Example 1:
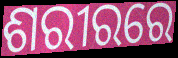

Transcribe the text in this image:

ଶରୀରରେ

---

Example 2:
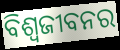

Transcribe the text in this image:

ବିଶ୍ଵଜୀବନର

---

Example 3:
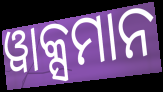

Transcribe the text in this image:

ୱାକ୍ସମାନ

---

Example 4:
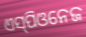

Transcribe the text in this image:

ଏସ୍‌ପିଓନେଜ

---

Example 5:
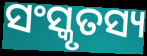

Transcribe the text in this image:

ସଂସ୍କୃତସ୍ୟ